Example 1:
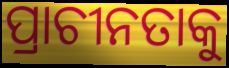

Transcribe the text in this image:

ପ୍ରାଚୀନତାକୁ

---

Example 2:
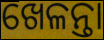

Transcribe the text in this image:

ଖେଳନ୍ତା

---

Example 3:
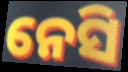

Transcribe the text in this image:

ନେସି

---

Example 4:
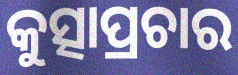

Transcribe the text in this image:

କୁତ୍ସାପ୍ରଚାର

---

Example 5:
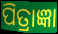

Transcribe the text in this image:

ପିତ୍ରାଜ୍ଞା